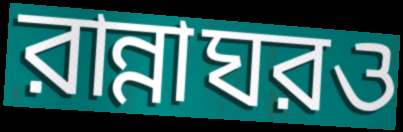
রান্নাঘরও